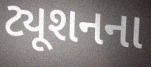
ટ્યૂશનના